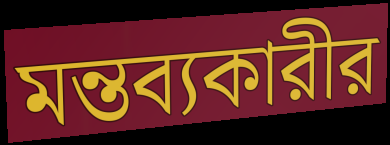
মন্তব্যকারীর